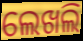
ଲେଖଲି